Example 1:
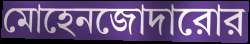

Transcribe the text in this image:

মোহেনজোদারোর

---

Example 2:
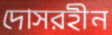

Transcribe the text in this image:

দোসরহীন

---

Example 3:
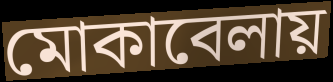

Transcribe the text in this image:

মোকাবেলায়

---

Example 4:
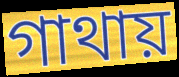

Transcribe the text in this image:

গাথায়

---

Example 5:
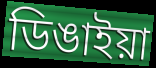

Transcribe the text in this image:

ডিঙাইয়া